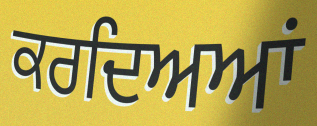
ਕਰਦਿਅਆਂ